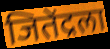
जितेंद्रला